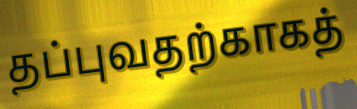
தப்புவதற்காகத்